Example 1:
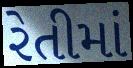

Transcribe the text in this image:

રેતીમાં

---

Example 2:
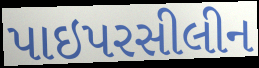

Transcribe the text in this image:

પાઇપરસીલીન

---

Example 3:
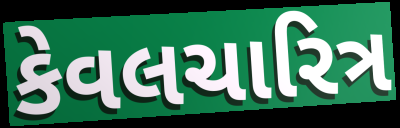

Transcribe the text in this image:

કેવલચારિત્ર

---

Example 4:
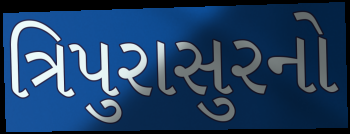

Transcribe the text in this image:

ત્રિપુરાસુરનો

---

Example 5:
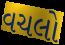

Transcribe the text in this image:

વચલો